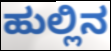
ಹುಲ್ಲಿನ